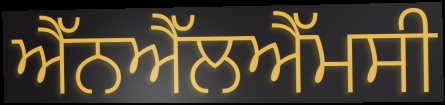
ਐੱਨਐੱਲਐੱਮਸੀ